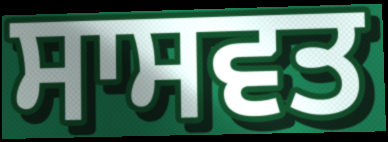
ਸਾਸਵਤ